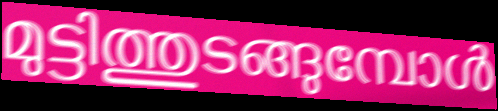
മുട്ടിത്തുടങ്ങുമ്പോൾ